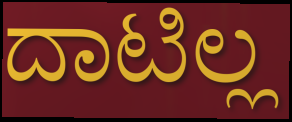
ದಾಟಿಲ್ಲ